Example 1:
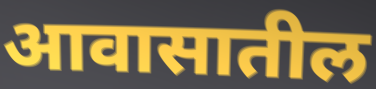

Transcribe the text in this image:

आवासातील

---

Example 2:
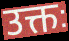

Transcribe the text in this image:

उक्तः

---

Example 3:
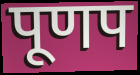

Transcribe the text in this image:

पूणप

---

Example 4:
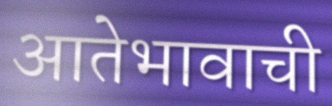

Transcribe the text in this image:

आतेभावाची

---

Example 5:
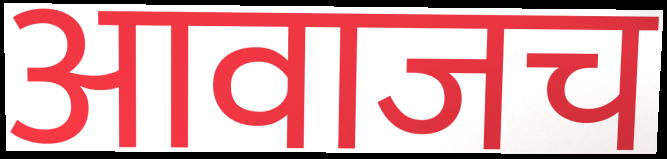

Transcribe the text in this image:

आवाजच